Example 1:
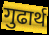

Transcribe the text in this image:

गुढार्थ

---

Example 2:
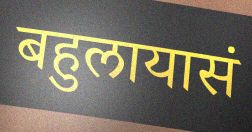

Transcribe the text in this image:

बहुलायासं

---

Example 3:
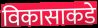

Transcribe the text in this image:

विकासाकडे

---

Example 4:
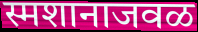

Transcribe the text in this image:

स्मशानाजवळ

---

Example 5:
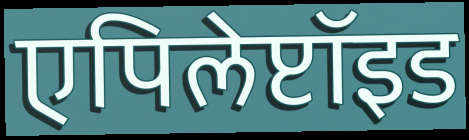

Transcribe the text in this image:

एपिलेप्टॉइड